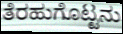
ತೆರಹುಗೊಟ್ಟನು